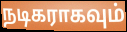
நடிகராகவும்